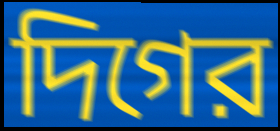
দিগের